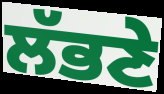
ਲੱਭਣੇ